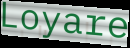
Loyare